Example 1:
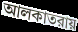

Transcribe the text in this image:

আলকাতরায়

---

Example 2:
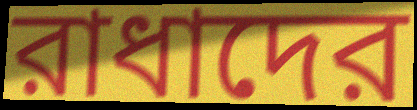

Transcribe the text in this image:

রাধাদের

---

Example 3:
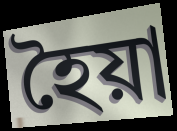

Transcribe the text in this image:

হৈয়া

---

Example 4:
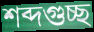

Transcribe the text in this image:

শব্দগুচ্ছ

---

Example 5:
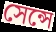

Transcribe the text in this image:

সেন্সে